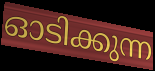
ഓടിക്കുന്ന